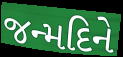
જન્મદિને